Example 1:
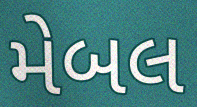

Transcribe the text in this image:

મેબલ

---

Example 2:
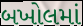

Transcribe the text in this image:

બખોલમાં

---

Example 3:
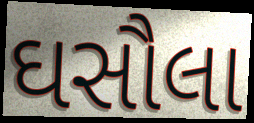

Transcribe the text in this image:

ઘસૌલા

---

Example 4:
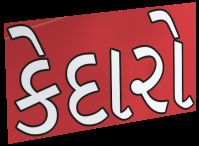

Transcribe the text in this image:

કેદારો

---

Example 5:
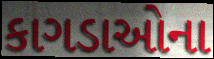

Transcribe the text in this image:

કાગડાઓના